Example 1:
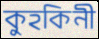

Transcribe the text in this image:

কুহকিনী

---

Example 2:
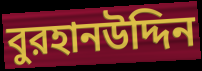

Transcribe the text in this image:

বুরহানউদ্দিন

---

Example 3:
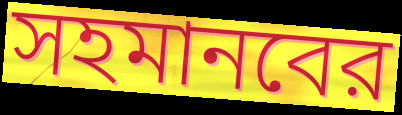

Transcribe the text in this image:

সহমানবের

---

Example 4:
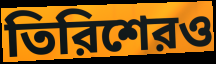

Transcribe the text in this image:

তিরিশেরও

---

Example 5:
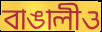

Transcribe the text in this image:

বাঙালীও